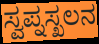
ಸ್ವಪ್ನಸ್ಖಲನ